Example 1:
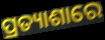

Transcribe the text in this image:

ପ୍ରତ୍ୟାଶାରେ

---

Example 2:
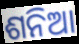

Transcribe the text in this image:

ଶନିଆ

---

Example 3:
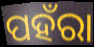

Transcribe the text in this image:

ପହଁରା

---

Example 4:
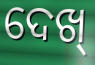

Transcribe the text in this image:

ଦେଖ୍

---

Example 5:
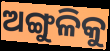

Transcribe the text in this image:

ଅଙ୍ଗୁଳିକୁ